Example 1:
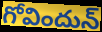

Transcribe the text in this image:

గోవిందున్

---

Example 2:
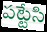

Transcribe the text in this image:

పట్టేసి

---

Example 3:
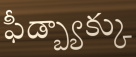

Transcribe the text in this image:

ఫీడ్బ్యాక్కు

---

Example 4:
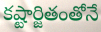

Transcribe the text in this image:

కష్టార్జితంతోనే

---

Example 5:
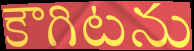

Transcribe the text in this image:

కౌగిటను